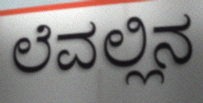
ಲೆವಲ್ಲಿನ